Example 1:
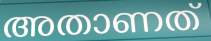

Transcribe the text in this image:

അതാണത്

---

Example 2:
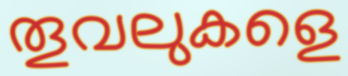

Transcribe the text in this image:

തൂവലുകളെ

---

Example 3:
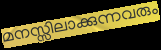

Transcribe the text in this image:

മനസ്സിലാക്കുന്നവരും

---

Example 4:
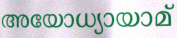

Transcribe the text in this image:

അയോധ്യായാമ്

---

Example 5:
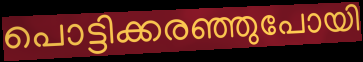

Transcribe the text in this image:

പൊട്ടിക്കരഞ്ഞുപോയി